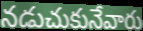
నడుచుకునేవారు